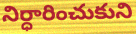
నిర్ధారించుకుని